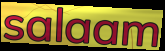
salaam